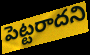
పెట్టరాదని